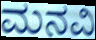
ಮನವಿ